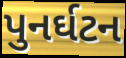
પુનર્ઘટન